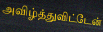
அவிழ்த்துவிட்டேன்